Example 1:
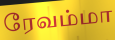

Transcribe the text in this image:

ரேவம்மா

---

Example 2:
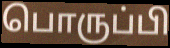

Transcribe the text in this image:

பொருப்பி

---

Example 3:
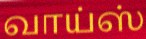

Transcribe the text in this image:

வாய்ஸ்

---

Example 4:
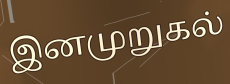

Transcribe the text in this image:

இனமுறுகல்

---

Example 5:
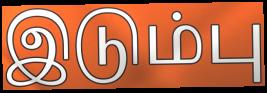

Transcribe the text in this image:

இடும்பு